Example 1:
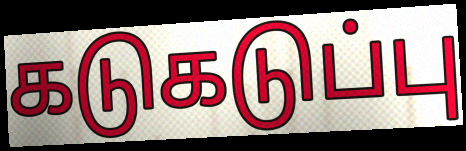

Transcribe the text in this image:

கடுகடுப்பு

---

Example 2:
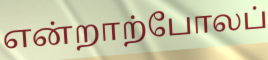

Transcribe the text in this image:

என்றாற்போலப்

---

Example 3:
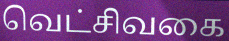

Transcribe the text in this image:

வெட்சிவகை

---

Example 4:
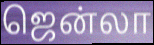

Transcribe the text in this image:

ஜென்லா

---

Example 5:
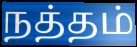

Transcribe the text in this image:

நத்தம்